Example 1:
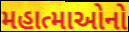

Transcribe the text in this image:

મહાત્માઓનો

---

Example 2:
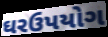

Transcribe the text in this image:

ઘરઉપયોગ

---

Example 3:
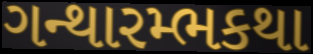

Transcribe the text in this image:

ગન્થારમ્ભકથા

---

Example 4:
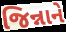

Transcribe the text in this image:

જિન્નાને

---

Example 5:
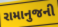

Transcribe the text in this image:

રામાનુજની